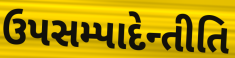
ઉપસમ્પાદેન્તીતિ